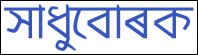
সাধুবোৰক